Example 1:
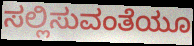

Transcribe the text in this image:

ಸಲ್ಲಿಸುವಂತೆಯೂ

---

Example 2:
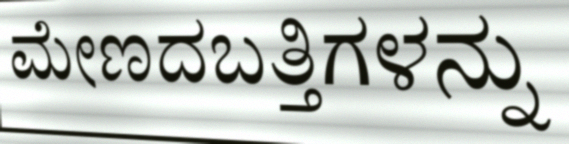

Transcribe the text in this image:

ಮೇಣದಬತ್ತಿಗಳನ್ನು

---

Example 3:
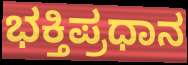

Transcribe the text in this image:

ಭಕ್ತಿಪ್ರಧಾನ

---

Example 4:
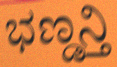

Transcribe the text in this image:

ಭಣ್ಡನ್ತಿ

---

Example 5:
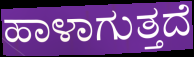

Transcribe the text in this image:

ಹಾಳಾಗುತ್ತದೆ